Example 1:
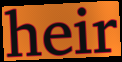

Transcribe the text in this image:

heir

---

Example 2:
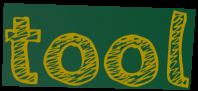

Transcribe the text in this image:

tool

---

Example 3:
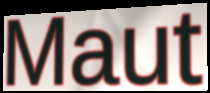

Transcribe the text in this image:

Maut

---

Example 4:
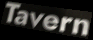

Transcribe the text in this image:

Tavern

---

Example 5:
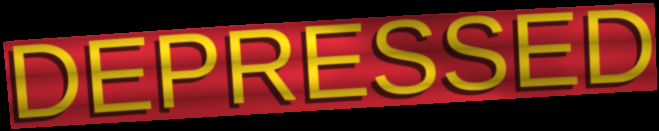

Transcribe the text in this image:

DEPRESSED